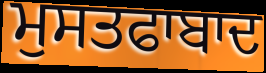
ਮੁਸਤਫਾਬਾਦ